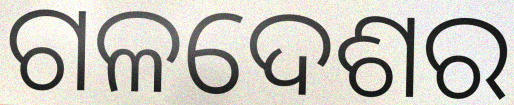
ଗଳଦେଶର